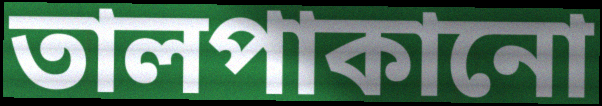
তালপাকানো